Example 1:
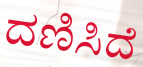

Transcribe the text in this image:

ದಣಿಸಿದೆ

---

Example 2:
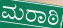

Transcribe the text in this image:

ಮರಾಠಿ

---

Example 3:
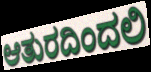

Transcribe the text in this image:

ಆತುರದಿಂದಲಿ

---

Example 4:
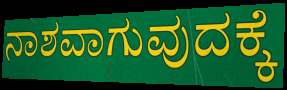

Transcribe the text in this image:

ನಾಶವಾಗುವುದಕ್ಕೆ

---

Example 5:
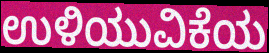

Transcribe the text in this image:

ಉಳಿಯುವಿಕೆಯ